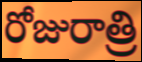
రోజురాత్రి